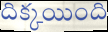
దిక్కయింది